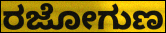
ರಜೋಗುಣ